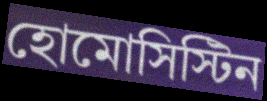
হোমোসিস্টিন